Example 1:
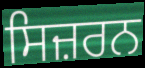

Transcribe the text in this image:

ਸਿਜ਼ਰਨ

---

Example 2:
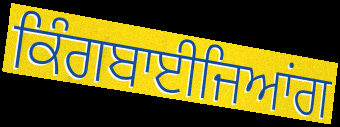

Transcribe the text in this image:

ਕਿੰਗਬਾਈਜਿਆਂਗ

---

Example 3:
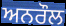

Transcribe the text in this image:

ਅਨਰੌਲ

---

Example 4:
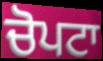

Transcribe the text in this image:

ਚੋਪਟਾ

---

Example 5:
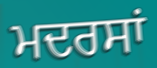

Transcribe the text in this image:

ਮਦਰਸਾਂ